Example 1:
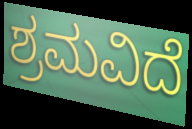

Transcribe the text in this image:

ಶ್ರಮವಿದೆ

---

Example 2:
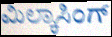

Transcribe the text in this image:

ಮಿಲ್ಕಾಸಿಂಗ್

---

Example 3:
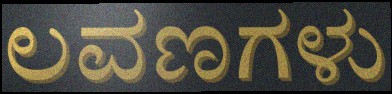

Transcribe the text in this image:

ಲವಣಗಳು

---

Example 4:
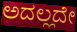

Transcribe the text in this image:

ಅದಲ್ಲದೇ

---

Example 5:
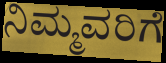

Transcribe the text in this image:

ನಿಮ್ಮವರಿಗೆ